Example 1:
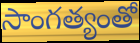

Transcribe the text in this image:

సాంగత్యంతో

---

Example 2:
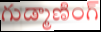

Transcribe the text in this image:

గుడ్మాణింగ్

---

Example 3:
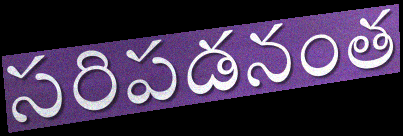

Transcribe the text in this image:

సరిపడనంత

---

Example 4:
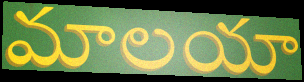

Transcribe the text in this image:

మాలయా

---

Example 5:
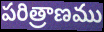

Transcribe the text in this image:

పరిత్రాణము